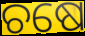
ଚଷେ